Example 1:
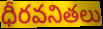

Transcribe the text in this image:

ధీరవనితలు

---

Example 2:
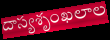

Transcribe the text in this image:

దాస్యశృంఖలాల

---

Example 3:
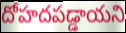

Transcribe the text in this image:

దోహదపడ్డాయని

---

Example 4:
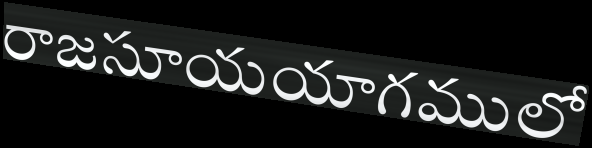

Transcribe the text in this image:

రాజసూయయాగములో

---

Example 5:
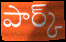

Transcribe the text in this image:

పార్క్